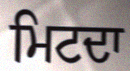
ਮਿਟਦਾ